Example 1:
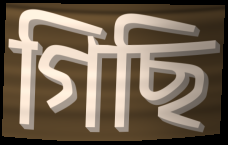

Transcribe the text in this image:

গিছি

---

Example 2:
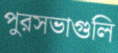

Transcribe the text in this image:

পুরসভাগুলি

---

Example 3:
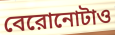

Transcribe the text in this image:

বেরোনোটাও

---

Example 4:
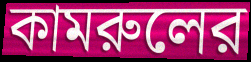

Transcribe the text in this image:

কামরুলের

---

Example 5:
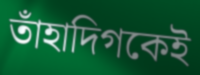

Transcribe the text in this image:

তাঁহাদিগকেই